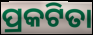
ପ୍ରକଟିତା